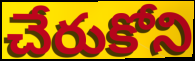
చేరుకోని